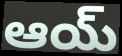
ఆయ్